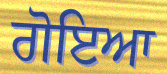
ਗੋਇਆ